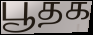
பூதக